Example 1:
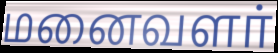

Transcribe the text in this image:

மனைவளர்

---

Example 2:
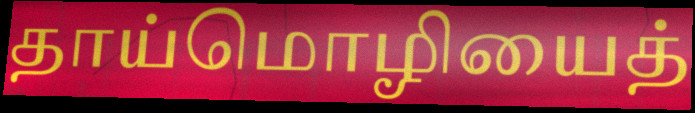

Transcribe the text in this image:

தாய்மொழியைத்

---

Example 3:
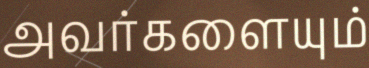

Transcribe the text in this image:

அவர்களையும்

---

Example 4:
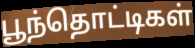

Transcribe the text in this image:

பூந்தொட்டிகள்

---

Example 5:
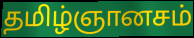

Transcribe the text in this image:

தமிழ்ஞானசம்